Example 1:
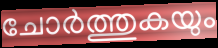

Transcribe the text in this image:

ചോർത്തുകയും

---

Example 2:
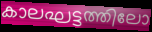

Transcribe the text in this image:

കാലഘട്ടത്തിലോ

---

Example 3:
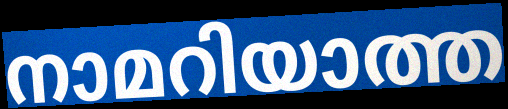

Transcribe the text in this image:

നാമറിയാത്ത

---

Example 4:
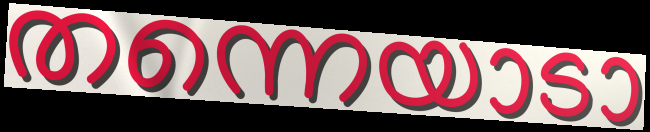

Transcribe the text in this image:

തന്നെയാടാ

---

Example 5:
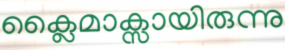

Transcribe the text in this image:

ക്ലൈമാക്സായിരുന്നു